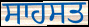
ਸਾਹਸਤ